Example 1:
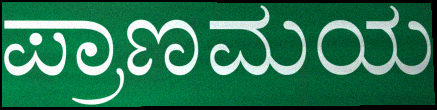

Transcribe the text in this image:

ಪ್ರಾಣಮಯ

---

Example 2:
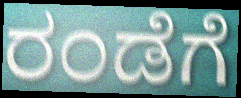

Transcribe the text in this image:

ರಂಡೆಗೆ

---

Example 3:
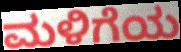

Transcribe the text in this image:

ಮಳಿಗೆಯ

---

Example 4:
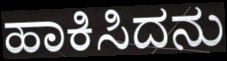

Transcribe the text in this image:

ಹಾಕಿಸಿದನು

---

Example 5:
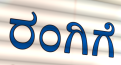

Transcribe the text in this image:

ರಂಗಿಗೆ